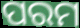
ପରମ